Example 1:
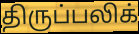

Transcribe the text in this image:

திருப்பலிக்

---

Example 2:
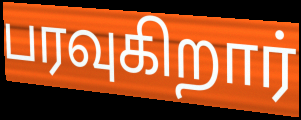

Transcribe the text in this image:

பரவுகிறார்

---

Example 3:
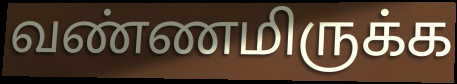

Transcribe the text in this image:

வண்ணமிருக்க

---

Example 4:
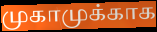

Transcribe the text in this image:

முகாமுக்காக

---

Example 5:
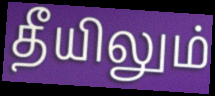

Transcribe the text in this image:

தீயிலும்